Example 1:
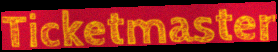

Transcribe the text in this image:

Ticketmaster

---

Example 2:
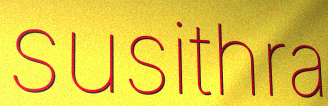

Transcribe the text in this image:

susithra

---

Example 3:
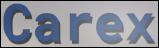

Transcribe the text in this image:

Carex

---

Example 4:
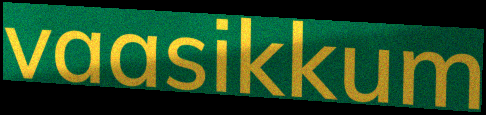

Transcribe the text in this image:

vaasikkum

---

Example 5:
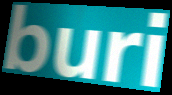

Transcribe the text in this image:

buri